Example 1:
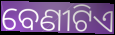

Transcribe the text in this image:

ବେଣୀଟିଏ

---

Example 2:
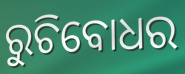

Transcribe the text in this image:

ରୁଚିବୋଧର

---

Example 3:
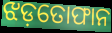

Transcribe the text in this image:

ଝଡ଼ତୋଫାନ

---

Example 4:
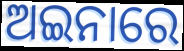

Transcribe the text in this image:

ଅଇନାରେ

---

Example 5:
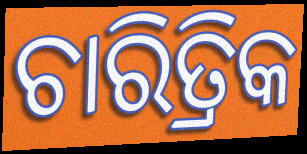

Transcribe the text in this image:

ଚାରିତ୍ରିକ